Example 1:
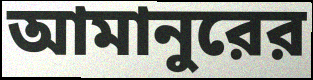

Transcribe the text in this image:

আমানুরের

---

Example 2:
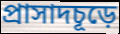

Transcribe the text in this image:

প্রাসাদচূড়ে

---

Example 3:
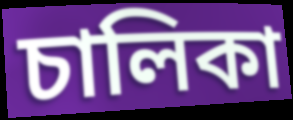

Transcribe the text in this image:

চালিকা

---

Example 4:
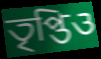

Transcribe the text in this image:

তৃপ্তিও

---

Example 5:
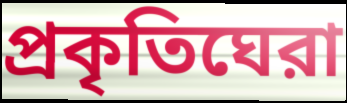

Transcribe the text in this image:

প্রকৃতিঘেরা